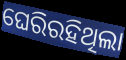
ଘେରିରହିଥିଲା